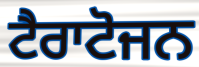
ਟੈਰਾਟੋਜਨ